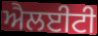
ਐਲਈਟੀ